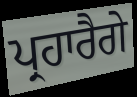
ਪ੍ਰਹਾਰੈਗੇ